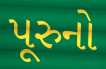
પૂરુનો